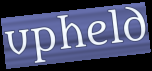
upheld